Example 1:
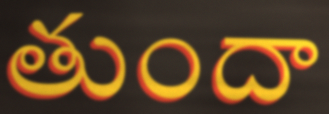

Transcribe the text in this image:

తుందా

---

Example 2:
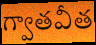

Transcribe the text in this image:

గ్వాతవీత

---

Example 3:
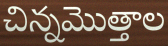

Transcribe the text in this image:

చిన్నమొత్తాల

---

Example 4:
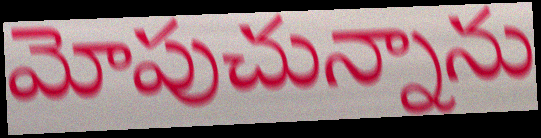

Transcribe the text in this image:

మోపుచున్నాను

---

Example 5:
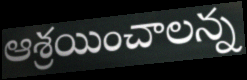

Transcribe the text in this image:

ఆశ్రయించాలన్న